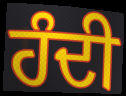
ਹੰਦੀ